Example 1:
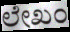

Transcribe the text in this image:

ಲೇಖಂ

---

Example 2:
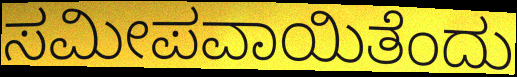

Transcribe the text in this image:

ಸಮೀಪವಾಯಿತೆಂದು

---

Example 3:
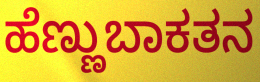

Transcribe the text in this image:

ಹೆಣ್ಣುಬಾಕತನ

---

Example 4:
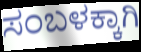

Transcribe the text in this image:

ಸಂಬಳಕ್ಕಾಗಿ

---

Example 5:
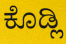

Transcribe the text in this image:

ಕೊಡ್ಲಿ